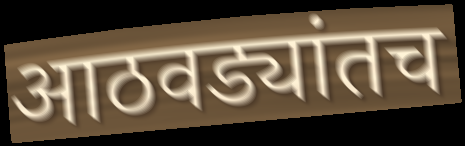
आठवड्यांतच